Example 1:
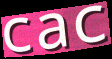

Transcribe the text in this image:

cac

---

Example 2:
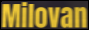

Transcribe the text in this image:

Milovan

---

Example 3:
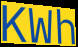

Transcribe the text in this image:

KWh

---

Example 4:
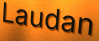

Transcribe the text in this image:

Laudan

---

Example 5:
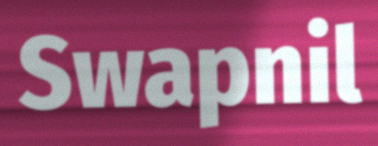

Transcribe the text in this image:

Swapnil